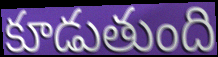
కూడుతుంది